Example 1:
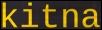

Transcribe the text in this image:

kitna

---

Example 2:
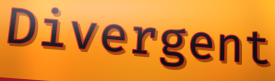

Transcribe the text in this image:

Divergent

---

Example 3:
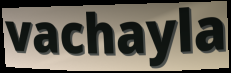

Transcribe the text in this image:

vachayla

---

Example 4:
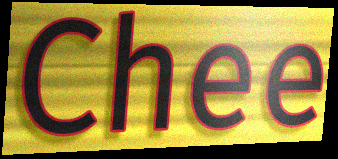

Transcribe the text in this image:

Chee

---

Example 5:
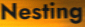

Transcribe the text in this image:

Nesting